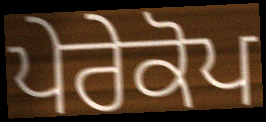
ਪੇਰੇਕੋਪ